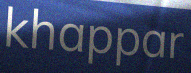
khappar